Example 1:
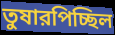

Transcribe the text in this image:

তুষারপিচ্ছিল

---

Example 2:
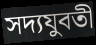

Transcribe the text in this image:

সদ্যযুবতী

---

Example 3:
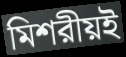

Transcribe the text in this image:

মিশরীয়ই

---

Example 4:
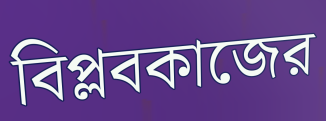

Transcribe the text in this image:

বিপ্লবকাজের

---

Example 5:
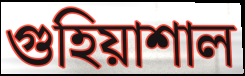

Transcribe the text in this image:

গুহিয়াশাল